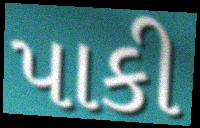
પાકી